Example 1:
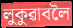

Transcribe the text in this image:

লুকুৱাবলৈ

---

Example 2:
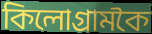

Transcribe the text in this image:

কিলোগ্ৰামকৈ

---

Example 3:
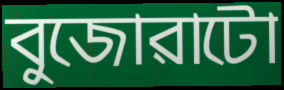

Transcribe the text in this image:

বুজোৱাটো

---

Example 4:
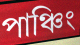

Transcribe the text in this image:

পাঞ্চিং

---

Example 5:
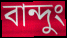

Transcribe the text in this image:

বান্দুং